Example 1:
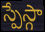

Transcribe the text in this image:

స్పేస్గా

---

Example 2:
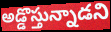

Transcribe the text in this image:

అడ్డొస్తున్నాడని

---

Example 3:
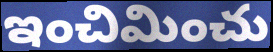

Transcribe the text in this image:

ఇంచిమించు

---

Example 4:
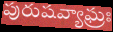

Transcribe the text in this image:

పురుషవ్యాఘ్రః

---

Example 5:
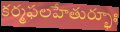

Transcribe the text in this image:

కర్మఫలహేతుర్భూః